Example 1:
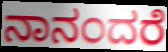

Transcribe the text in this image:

ನಾನಂದರೆ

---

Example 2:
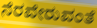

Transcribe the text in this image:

ನೆರವೇರುವಂತೆ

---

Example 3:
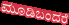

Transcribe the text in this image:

ಮೂಡಿಬಂದರೆ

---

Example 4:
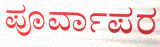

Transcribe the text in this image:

ಪೂರ್ವಾಪರ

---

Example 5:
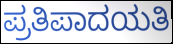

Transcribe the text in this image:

ಪ್ರತಿಪಾದಯತಿ